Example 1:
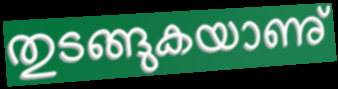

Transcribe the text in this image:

തുടങ്ങുകയാണു്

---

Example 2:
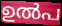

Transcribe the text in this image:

ഉൽപ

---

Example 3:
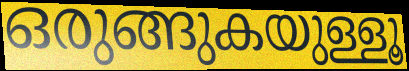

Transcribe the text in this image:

ഒരുങ്ങുകയുള്ളൂ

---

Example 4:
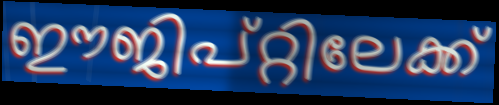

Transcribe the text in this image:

ഈജിപ്റ്റിലേക്ക്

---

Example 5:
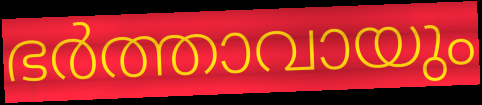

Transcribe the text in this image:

ഭർത്താവായും